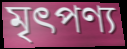
মৃৎপণ্য